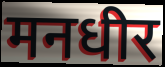
मनधीर